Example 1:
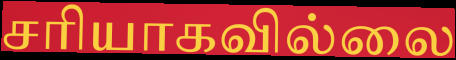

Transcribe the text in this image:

சரியாகவில்லை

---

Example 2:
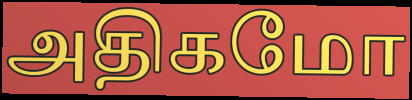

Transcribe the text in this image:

அதிகமோ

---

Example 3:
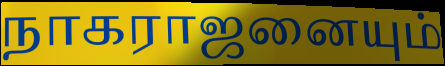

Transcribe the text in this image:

நாகராஜனையும்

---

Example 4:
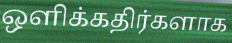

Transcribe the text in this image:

ஒளிக்கதிர்களாக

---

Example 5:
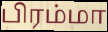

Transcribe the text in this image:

பிரம்மா